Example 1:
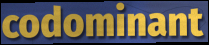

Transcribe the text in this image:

codominant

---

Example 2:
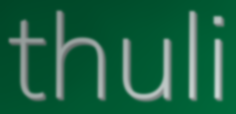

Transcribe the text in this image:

thuli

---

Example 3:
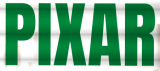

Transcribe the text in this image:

PIXAR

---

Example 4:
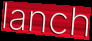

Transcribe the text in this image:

lanch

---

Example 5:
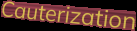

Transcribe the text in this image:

Cauterization